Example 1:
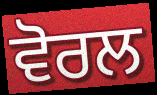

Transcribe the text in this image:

ਵੋਰਲ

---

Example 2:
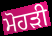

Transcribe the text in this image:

ਮੋਹੜੀ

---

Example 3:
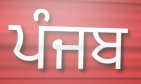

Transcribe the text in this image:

ਪੰਜਬ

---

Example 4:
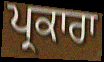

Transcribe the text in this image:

ਪ੍ਰਕਾਰਾ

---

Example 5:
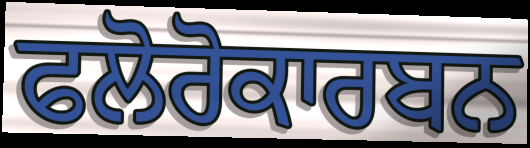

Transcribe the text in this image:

ਫਲੋਰੋਕਾਰਬਨ